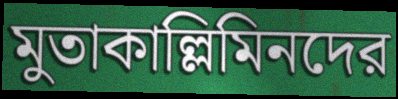
মুতাকাল্লিমিনদের